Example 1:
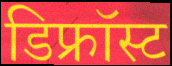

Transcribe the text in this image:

डिफ्रॉस्ट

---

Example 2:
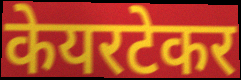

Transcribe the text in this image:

केयरटेकर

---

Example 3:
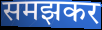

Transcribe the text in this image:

समझकर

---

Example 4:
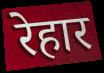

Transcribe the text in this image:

रेहार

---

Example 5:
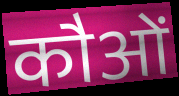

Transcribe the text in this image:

कौओं